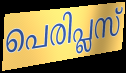
പെരിപ്ലസ്